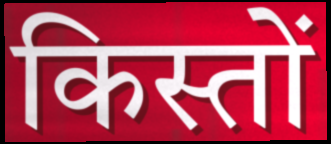
किस्तों